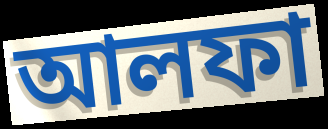
আলফা